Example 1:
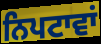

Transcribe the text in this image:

ਨਿਪਟਾਵਾਂ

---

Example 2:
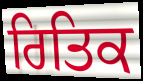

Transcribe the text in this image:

ਰਿਤਿਕ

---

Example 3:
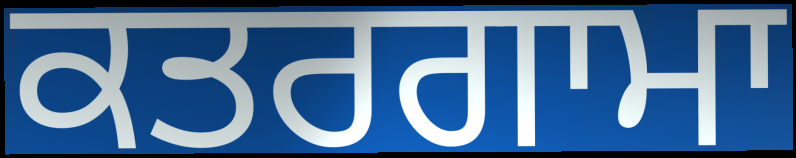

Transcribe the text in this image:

ਕਤਰਗਾਮਾ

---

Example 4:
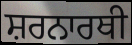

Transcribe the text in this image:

ਸ਼ਰਨਾਰਥੀ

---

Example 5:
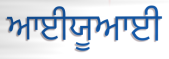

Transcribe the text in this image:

ਆਈਯੂਆਈ